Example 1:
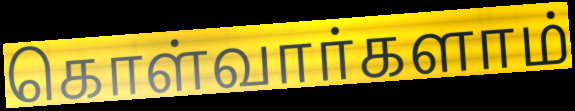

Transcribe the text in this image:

கொள்வார்களாம்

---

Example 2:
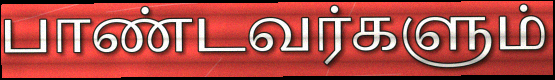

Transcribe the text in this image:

பாண்டவர்களும்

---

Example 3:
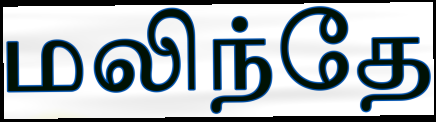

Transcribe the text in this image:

மலிந்தே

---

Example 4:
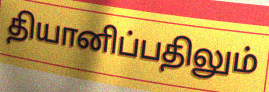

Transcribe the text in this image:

தியானிப்பதிலும்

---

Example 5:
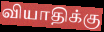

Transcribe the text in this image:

வியாதிக்கு